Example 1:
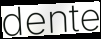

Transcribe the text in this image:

dente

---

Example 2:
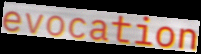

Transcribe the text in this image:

evocation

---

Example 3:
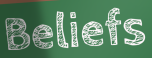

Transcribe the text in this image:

Beliefs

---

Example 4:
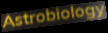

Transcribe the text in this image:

Astrobiology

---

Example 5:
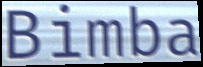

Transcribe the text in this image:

Bimba